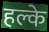
हल्के